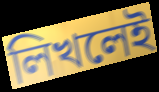
লিখলেই